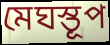
মেঘস্তূপ